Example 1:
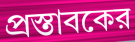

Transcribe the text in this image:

প্রস্তাবকের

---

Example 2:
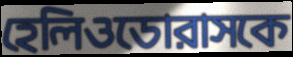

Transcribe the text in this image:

হেলিওডোরাসকে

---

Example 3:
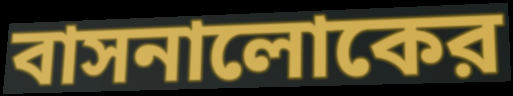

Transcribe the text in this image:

বাসনালোকের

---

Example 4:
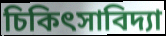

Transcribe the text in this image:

চিকিৎসাবিদ্যা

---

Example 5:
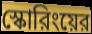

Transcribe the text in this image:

স্কোরিংয়ের